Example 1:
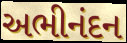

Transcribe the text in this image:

અભીનંદન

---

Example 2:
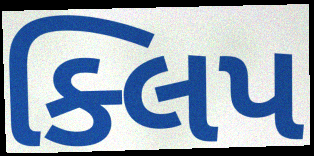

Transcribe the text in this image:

ક્લિપ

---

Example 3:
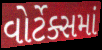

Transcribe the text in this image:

વોર્ટેક્સમાં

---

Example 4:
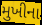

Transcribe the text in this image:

મુખીના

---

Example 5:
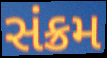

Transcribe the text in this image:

સંક્રમ